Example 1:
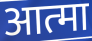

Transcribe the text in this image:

आत्‍मा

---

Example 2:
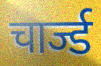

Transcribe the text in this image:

चार्ज्ड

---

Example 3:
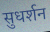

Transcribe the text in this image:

सुधर्शन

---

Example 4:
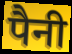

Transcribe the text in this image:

पैनी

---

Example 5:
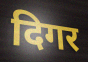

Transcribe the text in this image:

दिगर